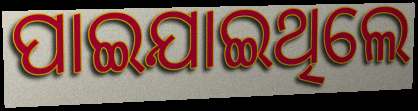
ପାଇଯାଇଥିଲେ